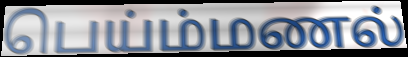
பெய்ம்மணல்